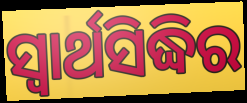
ସ୍ଵାର୍ଥସିଦ୍ଧିର